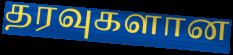
தரவுகளான